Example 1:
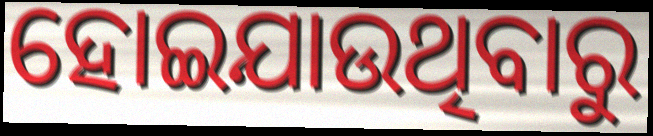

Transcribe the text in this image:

ହୋଇଯାଉଥିବାରୁ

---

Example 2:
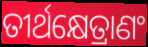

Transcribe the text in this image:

ତୀର୍ଥକ୍ଷେତ୍ରାଣଂ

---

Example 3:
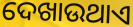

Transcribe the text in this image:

ଦେଖାଉଥାଏ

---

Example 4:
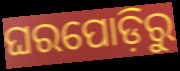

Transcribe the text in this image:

ଘରପୋଡ଼ିରୁ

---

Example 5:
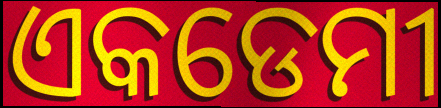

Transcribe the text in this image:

ଏକଡେମୀ